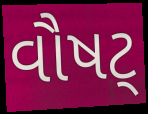
વૌષટ્